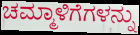
ಚಮ್ಮಾಳಿಗೆಗಳನ್ನು